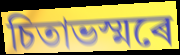
চিতাভস্মৰে